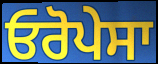
ਓਰੋਪੇਸਾ